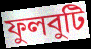
ফুলবুটি